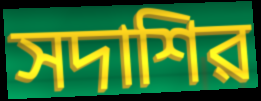
সদাশিৱ